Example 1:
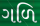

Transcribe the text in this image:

ગળિ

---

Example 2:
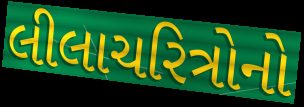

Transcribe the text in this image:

લીલાચરિત્રોનો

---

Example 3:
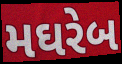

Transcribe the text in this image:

મઘરેબ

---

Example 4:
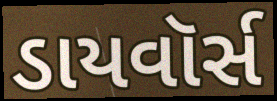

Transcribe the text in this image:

ડાયવૉર્સ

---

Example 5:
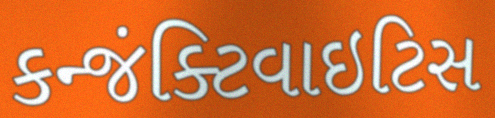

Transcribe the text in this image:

કન્જંક્ટિવાઇટિસ